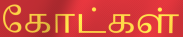
கோட்கள்